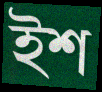
ইশ